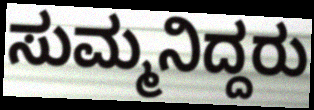
ಸುಮ್ಮನಿದ್ದರು